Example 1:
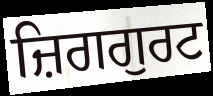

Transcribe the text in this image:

ਜ਼ਿਗਗੁਰਟ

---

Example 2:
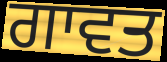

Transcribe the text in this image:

ਗਾਵਤ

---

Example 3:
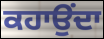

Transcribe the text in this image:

ਕਹਾਉਂਦਾ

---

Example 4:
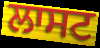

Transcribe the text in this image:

ਲਾਸਟ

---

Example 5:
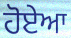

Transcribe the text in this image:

ਹੋਏਆ